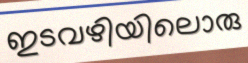
ഇടവഴിയിലൊരു